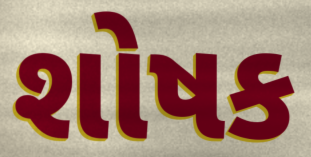
શોષક